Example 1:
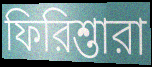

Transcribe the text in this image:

ফিরিশ্তারা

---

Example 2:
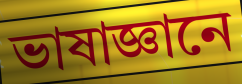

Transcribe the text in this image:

ভাষাজ্ঞানে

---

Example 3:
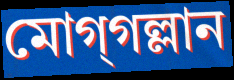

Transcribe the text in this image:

মোগ্‌গল্লান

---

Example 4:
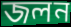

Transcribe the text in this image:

জলন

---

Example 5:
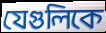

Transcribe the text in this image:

যেগুলিকে